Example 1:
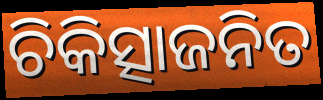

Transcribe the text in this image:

ଚିକିତ୍ସାଜନିତ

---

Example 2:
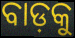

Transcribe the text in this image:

ବାଡ଼କୁ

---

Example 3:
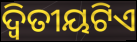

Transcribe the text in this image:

ଦ୍ୱିତୀୟଟିଏ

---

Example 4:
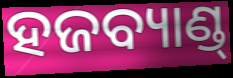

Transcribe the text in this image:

ହଜବ୍ୟାଣ୍ଡ୍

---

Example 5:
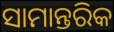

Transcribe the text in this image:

ସାମାନ୍ତରିକ